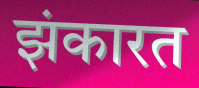
झंकारत